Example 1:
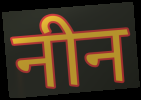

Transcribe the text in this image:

नीन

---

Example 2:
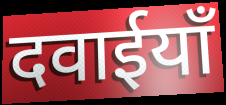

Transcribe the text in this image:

दवाईयाँ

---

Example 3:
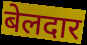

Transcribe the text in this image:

बेलदार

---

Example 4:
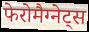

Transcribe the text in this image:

फेरोमैग्नेट्स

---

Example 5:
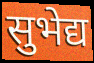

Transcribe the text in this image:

सुभेद्य